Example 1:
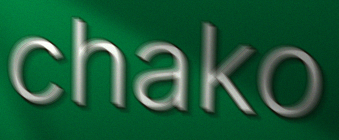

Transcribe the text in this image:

chako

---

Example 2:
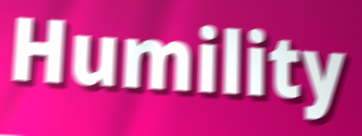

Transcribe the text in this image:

Humility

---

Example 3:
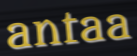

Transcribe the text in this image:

antaa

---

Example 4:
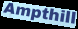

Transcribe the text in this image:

Ampthill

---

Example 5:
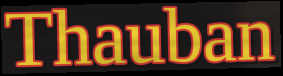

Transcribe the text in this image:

Thauban